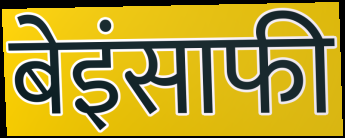
बेइंसाफी